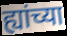
ह्यांच्या